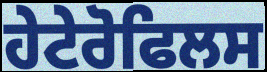
ਹੇਟੇਰੋਫਿਲਸ